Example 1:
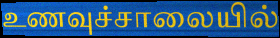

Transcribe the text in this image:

உணவுச்சாலையில்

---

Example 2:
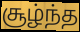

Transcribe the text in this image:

சூழ்ந்த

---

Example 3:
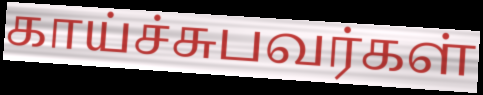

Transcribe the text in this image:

காய்ச்சுபவர்கள்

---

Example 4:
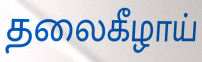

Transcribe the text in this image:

தலைகீழாய்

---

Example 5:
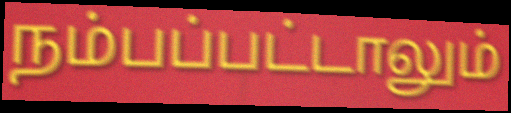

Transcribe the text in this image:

நம்பப்பட்டாலும்